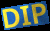
DIP